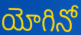
యోగినో